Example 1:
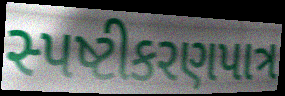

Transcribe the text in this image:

સ્પષ્ટીકરણપાત્ર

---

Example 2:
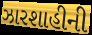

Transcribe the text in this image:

ઝારશાહીની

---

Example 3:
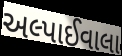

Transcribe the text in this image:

અલ્પાઈવાલા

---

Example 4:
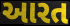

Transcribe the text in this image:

આરત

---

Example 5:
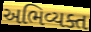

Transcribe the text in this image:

અભિવ્યક્ત